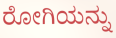
ರೋಗಿಯನ್ನು